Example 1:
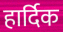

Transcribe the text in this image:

हार्दिक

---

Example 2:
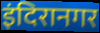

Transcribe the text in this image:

इंदिरानगर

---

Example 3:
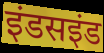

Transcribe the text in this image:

इंडसइंड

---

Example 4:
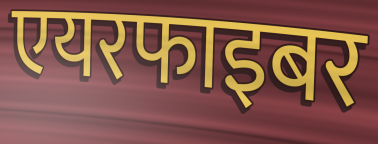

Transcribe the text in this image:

एयरफाइबर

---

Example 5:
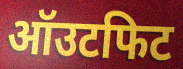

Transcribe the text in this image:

ऑउटफिट